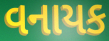
વનાયક